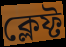
ক্লেফ্ট